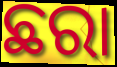
ଛରା